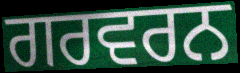
ਗਰਵਰਨ